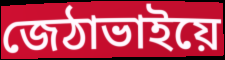
জেঠাভাইয়ে